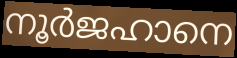
നൂർജഹാനെ